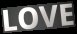
LOVE